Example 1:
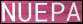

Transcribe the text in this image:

NUEPA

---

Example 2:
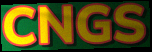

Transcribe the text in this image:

CNGS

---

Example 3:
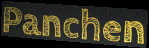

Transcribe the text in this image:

Panchen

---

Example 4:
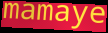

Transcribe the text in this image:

mamaye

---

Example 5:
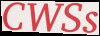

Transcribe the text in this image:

CWSs